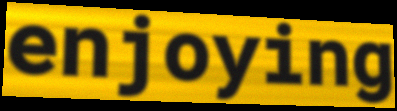
enjoying